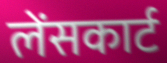
लेंसकार्ट